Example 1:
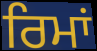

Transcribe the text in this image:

ਰਿਮਾਂ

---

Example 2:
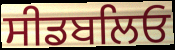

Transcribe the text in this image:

ਸੀਡਬਲਿਓ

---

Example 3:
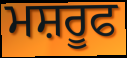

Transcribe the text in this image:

ਮਸ਼ਰੂਫ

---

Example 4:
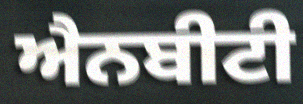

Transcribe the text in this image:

ਐਨਬੀਟੀ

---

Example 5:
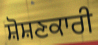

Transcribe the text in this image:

ਸ਼ੋਸ਼ਣਕਾਰੀ